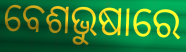
ବେଶଭୁଷାରେ